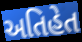
અતિહેત